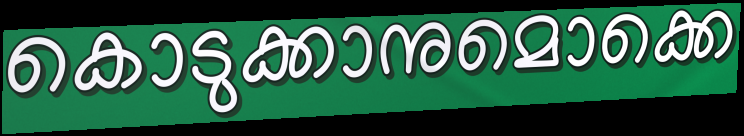
കൊടുക്കാനുമൊക്കെ